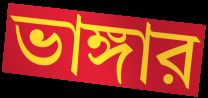
ভাঙ্গার